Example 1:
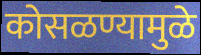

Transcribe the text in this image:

कोसळण्यामुळे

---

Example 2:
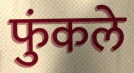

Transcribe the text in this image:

फुंकले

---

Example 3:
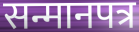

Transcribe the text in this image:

सन्मानपत्र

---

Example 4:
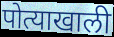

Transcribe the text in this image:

पोत्याखाली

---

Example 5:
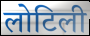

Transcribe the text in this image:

लोटिली